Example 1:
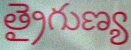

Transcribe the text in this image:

త్రైగుణ్య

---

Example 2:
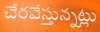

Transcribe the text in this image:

చేరవేస్తున్నట్లు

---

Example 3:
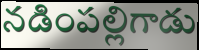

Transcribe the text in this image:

నడింపల్లిగాడు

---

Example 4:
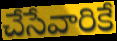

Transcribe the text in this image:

చేసేవారికే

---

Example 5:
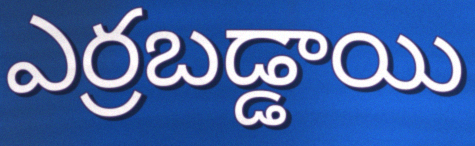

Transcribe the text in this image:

ఎర్రబడ్డాయి